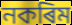
নকৰিম